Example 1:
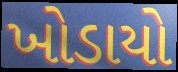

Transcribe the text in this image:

ખોડાયો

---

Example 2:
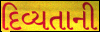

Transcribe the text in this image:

દિવ્યતાની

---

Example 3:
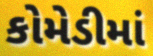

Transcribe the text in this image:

કોમેડીમાં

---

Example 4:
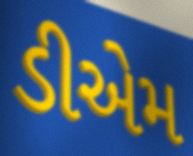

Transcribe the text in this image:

ડીએમ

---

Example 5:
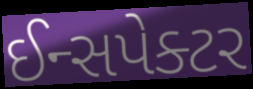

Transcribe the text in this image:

ઈન્સપેક્ટર